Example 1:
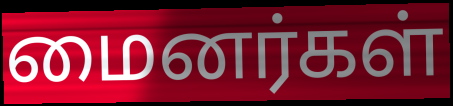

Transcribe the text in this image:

மைனர்கள்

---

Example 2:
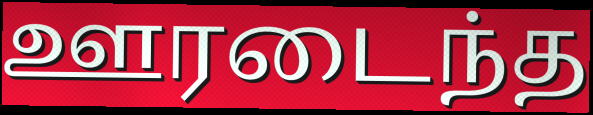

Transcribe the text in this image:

ஊரடைந்த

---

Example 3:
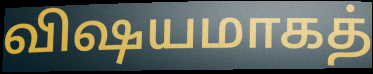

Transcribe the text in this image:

விஷயமாகத்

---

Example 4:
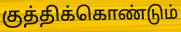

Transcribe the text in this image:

குத்திக்கொண்டும்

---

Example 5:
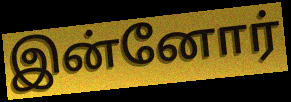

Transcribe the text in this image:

இன்னோர்